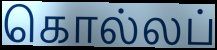
கொல்லப்